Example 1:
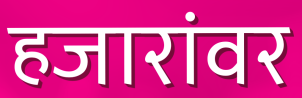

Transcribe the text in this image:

हजारांवर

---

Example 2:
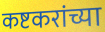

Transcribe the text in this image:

कष्टकरांच्या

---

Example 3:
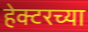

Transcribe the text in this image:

हेक्टरच्या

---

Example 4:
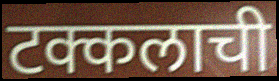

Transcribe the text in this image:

टक्कलाची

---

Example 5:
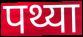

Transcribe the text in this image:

पथ्या